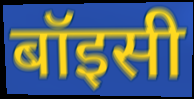
बॉइसी